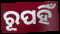
ରୂପହିଁ